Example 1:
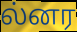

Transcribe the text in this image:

ல்னர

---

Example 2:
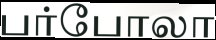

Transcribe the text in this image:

பர்போலா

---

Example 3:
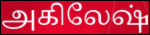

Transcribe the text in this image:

அகிலேஷ்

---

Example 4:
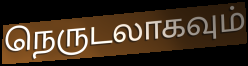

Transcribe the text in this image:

நெருடலாகவும்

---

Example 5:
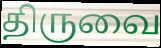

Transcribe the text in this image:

திருவை